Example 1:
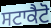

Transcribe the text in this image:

ਸਟਾਕੈਟੋ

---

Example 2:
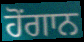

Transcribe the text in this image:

ਹੋਂਗਾਨ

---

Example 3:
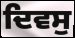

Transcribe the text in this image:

ਦਿਵਸੁ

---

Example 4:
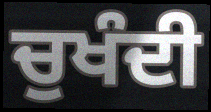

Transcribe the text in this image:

ਚੁਖੰਦੀ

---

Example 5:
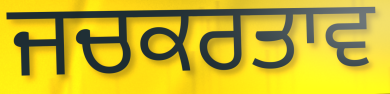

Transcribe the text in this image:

ਜਚਕਰਤਾਵ